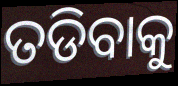
ତଡିବାକୁ